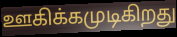
ஊகிக்கமுடிகிறது